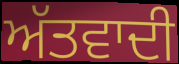
ਅੱਤਵਾਦੀ